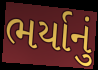
ભર્યાનું